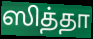
ஸித்தா